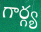
గార్గ్య